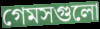
গেমসগুলো